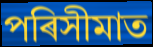
পৰিসীমাত